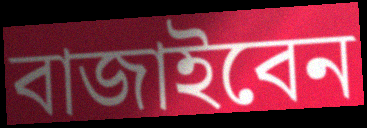
বাজাইবেন